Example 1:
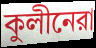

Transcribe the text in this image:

কুলীনেরা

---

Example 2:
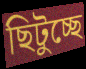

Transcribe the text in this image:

ছিটুচ্ছে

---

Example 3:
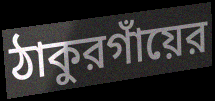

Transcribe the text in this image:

ঠাকুরগাঁয়ের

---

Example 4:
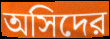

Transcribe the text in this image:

অসিদের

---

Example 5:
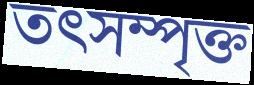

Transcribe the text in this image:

তৎসম্পৃক্ত